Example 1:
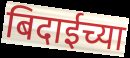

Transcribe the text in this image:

बिदाईच्या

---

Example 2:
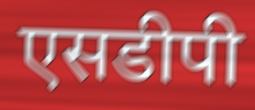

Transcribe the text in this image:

एसडीपी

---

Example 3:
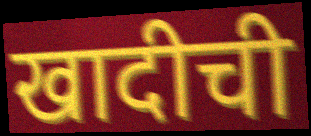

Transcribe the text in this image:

खादीची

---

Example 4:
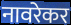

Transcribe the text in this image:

नावरेकर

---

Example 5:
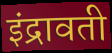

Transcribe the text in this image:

इंद्रावती